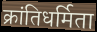
क्रांतिधर्मिता